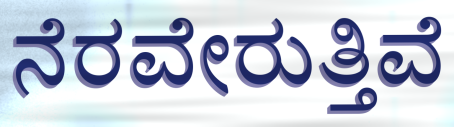
ನೆರವೇರುತ್ತಿವೆ